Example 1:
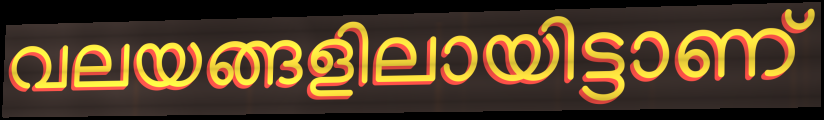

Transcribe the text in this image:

വലയങ്ങളിലായിട്ടാണ്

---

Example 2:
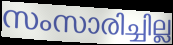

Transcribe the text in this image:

സംസാരിച്ചില്ല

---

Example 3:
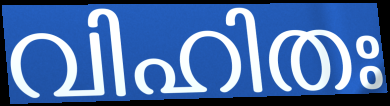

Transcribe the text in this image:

വിഹിതഃ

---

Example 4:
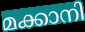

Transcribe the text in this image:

മക്കാനി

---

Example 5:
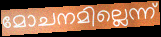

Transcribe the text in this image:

മോചനമില്ലെന്ന്